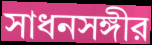
সাধনসঙ্গীর